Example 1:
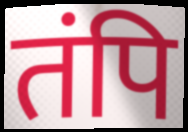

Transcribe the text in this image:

तंपि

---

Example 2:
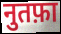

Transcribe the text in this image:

नुतफ़ा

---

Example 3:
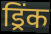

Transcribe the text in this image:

ड्रिंक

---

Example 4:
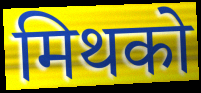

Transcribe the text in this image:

मिथको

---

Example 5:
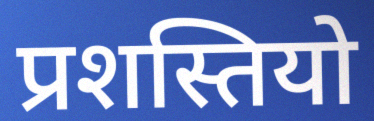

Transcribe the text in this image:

प्रशस्तियो